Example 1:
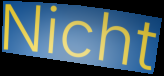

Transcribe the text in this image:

Nicht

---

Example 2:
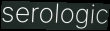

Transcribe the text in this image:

serologic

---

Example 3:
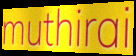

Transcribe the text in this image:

muthirai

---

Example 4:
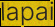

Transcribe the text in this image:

lapai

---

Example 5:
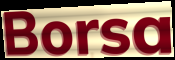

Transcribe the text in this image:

Borsa